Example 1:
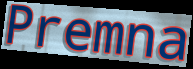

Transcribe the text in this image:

Premna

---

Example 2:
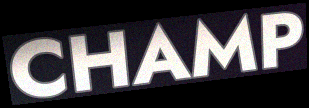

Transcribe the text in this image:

CHAMP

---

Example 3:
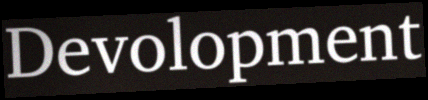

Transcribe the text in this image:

Devolopment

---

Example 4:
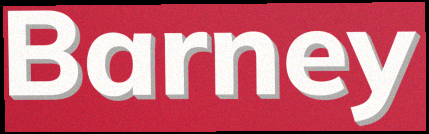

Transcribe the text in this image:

Barney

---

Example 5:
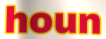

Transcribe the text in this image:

houn